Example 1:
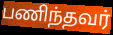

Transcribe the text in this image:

பணிந்தவர்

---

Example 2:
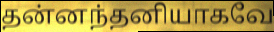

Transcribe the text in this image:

தன்னந்தனியாகவே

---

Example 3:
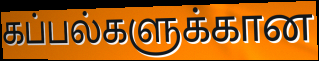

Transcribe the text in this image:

கப்பல்களுக்கான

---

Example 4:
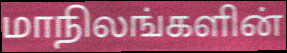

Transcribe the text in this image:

மாநிலங்களின்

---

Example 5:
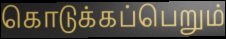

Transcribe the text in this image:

கொடுக்கப்பெறும்